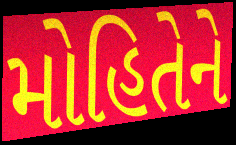
મોહિતેને